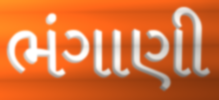
ભંગાણી